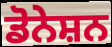
ਡੋਨੇਸ਼ਨ